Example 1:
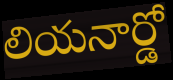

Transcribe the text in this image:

లియనార్డో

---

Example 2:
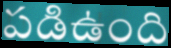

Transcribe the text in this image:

పడిఉంది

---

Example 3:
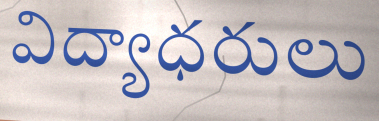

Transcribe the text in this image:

విద్యాధరులు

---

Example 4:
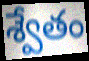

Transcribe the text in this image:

శ్వేతం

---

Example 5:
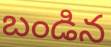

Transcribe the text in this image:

బండిన